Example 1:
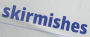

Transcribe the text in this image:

skirmishes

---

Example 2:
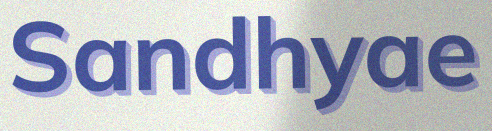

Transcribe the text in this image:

Sandhyae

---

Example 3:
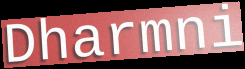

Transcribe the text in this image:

Dharmni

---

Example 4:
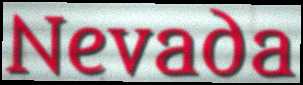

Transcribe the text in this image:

Nevada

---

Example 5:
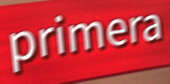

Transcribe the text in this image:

primera